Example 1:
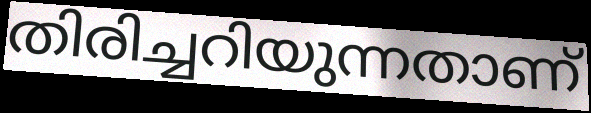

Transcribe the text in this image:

തിരിച്ചറിയുന്നതാണ്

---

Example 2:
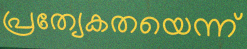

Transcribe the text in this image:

പ്രത്യേകതയെന്ന്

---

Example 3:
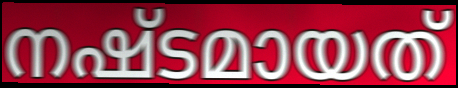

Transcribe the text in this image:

നഷ്ടമായത്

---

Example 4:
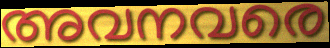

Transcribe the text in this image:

അവനവരെ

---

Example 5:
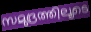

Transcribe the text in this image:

സമുദ്രത്തിലൂടെ